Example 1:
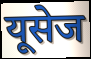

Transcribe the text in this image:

यूसेज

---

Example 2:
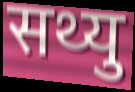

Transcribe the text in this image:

सथ्यु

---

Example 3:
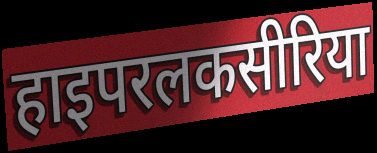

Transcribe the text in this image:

हाइपरलकसीरिया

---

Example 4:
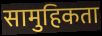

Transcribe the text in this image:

सामुहिकता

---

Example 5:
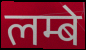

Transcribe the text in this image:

लम्बे